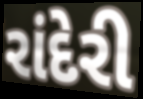
રાંદેરી